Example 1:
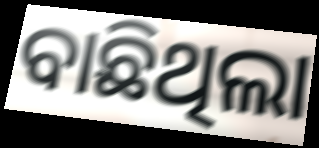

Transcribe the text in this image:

ବାଛିଥିଲା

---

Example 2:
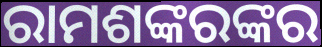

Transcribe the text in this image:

ରାମଶଙ୍କରଙ୍କର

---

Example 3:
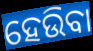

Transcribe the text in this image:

ହେଉିବା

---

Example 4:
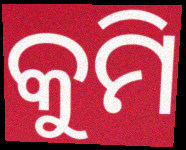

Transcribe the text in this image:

କୁମି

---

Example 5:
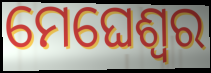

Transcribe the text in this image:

ମେଘେଶ୍ୱର